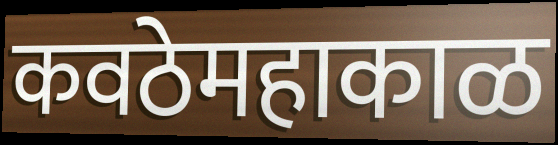
कवठेमहाकाळ